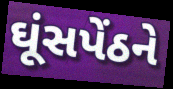
ઘૂંસપેંઠને